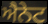
ਐਨੇਟ